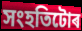
সংহতিটোৰ